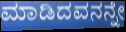
ಮಾಡಿದವನನ್ನೇ